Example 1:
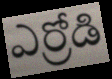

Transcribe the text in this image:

ఎర్రోడి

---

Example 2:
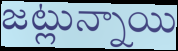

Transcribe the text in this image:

జట్లున్నాయి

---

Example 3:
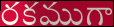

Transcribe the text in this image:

రకముగా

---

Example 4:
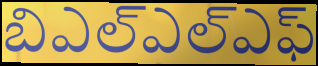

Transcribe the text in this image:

బిఎల్ఎల్ఎఫ్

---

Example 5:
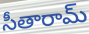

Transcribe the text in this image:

సీతారామ్